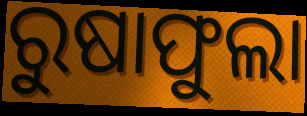
ରୁଷାଫୁଲା